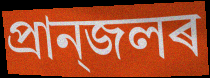
প্ৰান্জলৰ